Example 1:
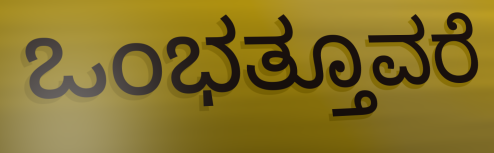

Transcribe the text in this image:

ಒಂಭತ್ತೂವರೆ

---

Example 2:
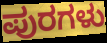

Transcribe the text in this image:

ಪುರಗಳು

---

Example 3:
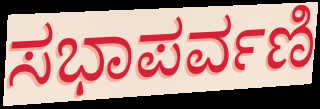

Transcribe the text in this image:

ಸಭಾಪರ್ವಣಿ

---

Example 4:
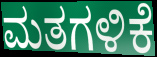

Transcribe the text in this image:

ಮತಗಳಿಕೆ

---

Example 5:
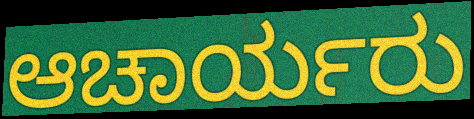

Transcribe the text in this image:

ಆಚಾರ್ಯರು